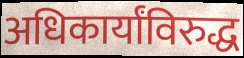
अधिकार्यांविरुद्ध